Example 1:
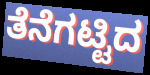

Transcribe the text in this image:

ತೆನೆಗಟ್ಟಿದ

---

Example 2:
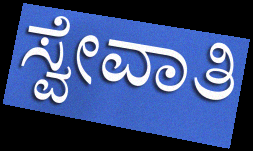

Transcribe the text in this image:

ಸ್ವೇವಾತಿ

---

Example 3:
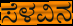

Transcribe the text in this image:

ಸೆಳವಿನ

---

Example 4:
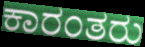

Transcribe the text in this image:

ಕಾರಂತರು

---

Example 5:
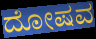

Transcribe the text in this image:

ದೋಷವ